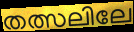
തത്സലിലേ